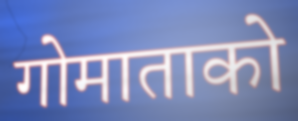
गोमाताको